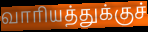
வாரியத்துக்குச்